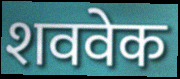
शववेक